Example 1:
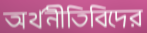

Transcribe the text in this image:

অর্থনীতিবিদের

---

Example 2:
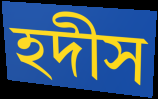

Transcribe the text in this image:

হদীস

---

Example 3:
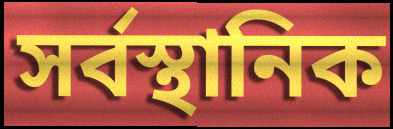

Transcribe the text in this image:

সর্বস্থানিক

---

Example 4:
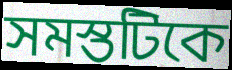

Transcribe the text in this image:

সমস্তটিকে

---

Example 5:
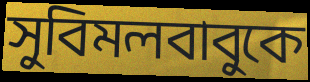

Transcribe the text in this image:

সুবিমলবাবুকে